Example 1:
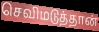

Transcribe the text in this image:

செவிமடுத்தான்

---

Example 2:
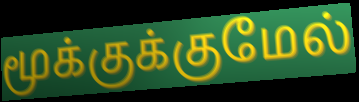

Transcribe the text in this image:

மூக்குக்குமேல்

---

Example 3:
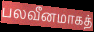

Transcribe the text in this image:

பலவீனமாகத்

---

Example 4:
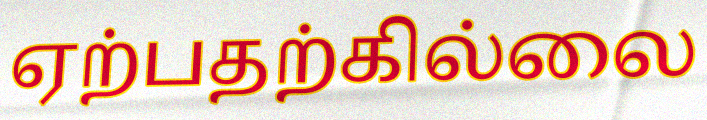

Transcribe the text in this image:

ஏற்பதற்கில்லை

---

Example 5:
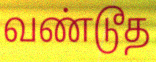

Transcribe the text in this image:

வண்டூத